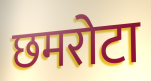
छमरोटा